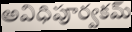
అవిధిపూర్వకమ్